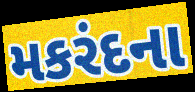
મકરંદના